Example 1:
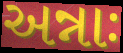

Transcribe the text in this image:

અન્નાઃ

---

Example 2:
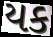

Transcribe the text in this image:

યક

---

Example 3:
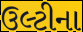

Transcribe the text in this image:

ઉલ્ટીના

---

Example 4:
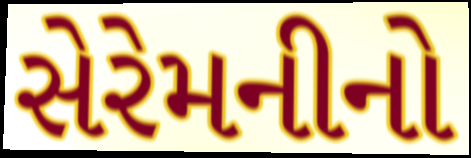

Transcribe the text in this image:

સેરેમનીનો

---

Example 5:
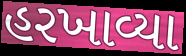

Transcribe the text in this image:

હરખાવ્યા